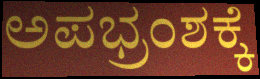
ಅಪಭ್ರಂಶಕ್ಕೆ